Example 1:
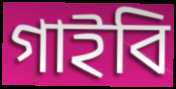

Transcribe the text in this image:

গাইবি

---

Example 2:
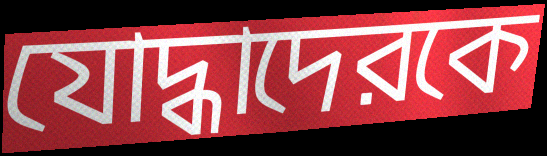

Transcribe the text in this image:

যোদ্ধাদেরকে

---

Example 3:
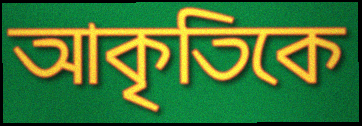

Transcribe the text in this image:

আকৃতিকে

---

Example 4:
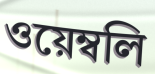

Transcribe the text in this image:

ওয়েম্বলি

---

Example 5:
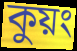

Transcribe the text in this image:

কুয়ং